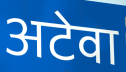
अटेवा